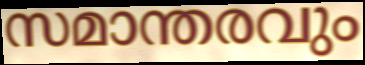
സമാന്തരവും